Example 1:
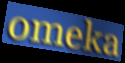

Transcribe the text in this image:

omeka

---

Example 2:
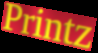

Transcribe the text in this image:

Printz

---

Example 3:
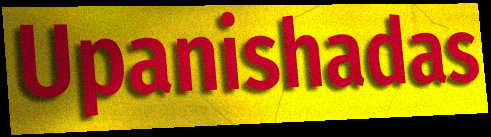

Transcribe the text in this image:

Upanishadas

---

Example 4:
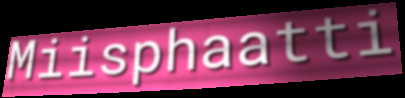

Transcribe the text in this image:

Miisphaatti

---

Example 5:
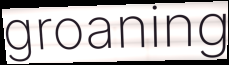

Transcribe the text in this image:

groaning